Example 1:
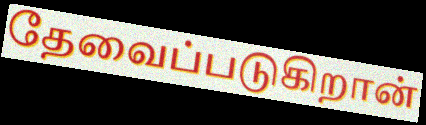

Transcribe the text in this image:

தேவைப்படுகிறான்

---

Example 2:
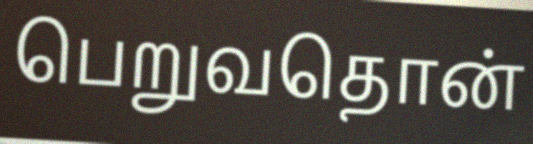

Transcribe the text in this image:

பெறுவதொன்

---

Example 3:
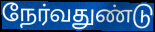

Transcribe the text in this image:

நேர்வதுண்டு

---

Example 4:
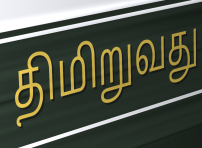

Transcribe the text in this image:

திமிறுவது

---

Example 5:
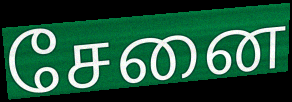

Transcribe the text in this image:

சேனை